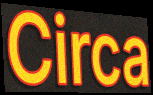
Circa